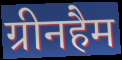
ग्रीनहैम